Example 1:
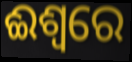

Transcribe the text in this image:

ଈଶ୍ଵରେ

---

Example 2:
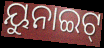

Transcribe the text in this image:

ୟୁନାଇଟ୍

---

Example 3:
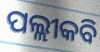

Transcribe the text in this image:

ପଲ୍ଲୀକବି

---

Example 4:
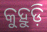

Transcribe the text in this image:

କୁହୁଡ଼ି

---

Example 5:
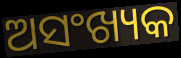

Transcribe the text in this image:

ଅସଂଖ୍ୟକ